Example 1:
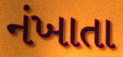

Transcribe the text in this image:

નંખાતા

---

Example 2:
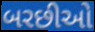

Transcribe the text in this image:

બરછીઓ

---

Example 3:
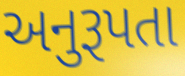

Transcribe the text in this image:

અનુરૂપતા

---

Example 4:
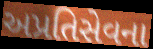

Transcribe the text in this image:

અપ્રતિસેવના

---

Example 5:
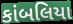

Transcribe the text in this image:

કાંબલિયા